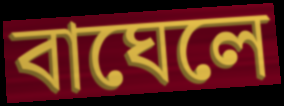
বাঘেলে